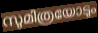
സുമിത്രയോടും